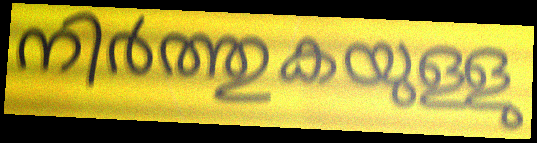
നിർത്തുകയുള്ളു